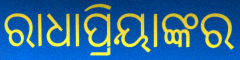
ରାଧାପ୍ରିୟାଙ୍କର